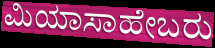
ಮಿಯಾಸಾಹೇಬರು